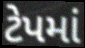
ટેપમાં